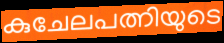
കുചേലപത്നിയുടെ